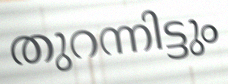
തുറന്നിട്ടും